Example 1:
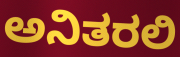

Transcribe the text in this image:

ಅನಿತರಲಿ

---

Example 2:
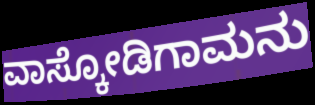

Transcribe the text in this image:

ವಾಸ್ಕೋಡಿಗಾಮನು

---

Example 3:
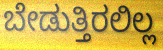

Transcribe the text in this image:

ಬೇಡುತ್ತಿರಲಿಲ್ಲ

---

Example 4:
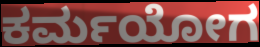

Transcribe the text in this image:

ಕರ್ಮಯೋಗ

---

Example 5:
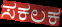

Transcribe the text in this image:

ಸಕಲಕ